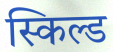
स्किल्ड